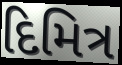
દિમિત્ર